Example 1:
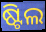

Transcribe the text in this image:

ଷ୍ଟିଲ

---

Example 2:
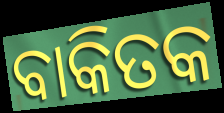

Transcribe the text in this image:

ବାକିତକ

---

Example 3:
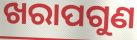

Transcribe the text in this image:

ଖରାପଗୁଣ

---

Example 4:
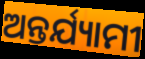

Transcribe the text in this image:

ଅନ୍ତର୍ଯ୍ୟାମୀ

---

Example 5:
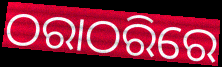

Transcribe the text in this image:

ଠରାଠରିରେ